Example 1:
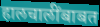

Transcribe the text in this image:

हालचालींबाबत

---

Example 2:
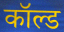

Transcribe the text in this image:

कॉल्ड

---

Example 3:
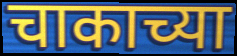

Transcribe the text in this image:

चाकाच्या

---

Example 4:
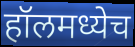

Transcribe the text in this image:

हॉलमध्येच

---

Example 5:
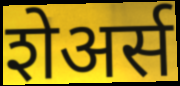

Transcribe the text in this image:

शेअर्स